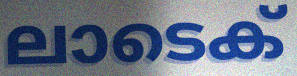
ലാടെക്